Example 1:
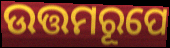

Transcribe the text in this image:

ଉତ୍ତମରୂପେ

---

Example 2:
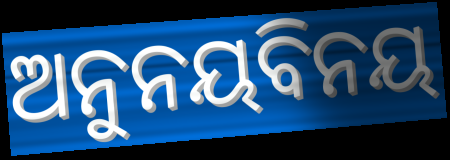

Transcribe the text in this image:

ଅନୁନୟବିନୟ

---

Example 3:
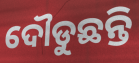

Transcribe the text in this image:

ଦୌଡୁଛନ୍ତି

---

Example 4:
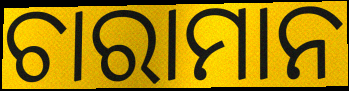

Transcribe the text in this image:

ଚାରାମାନ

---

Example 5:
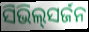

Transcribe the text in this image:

ସିଭିଲ୍‌ସର୍ଜନ